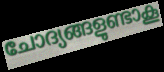
ചോദ്യങ്ങളുണ്ടാകൂ